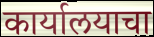
कार्यालयाचा